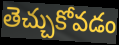
తెచ్చుకోవడం